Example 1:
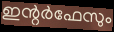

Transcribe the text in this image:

ഇന്റർഫേസും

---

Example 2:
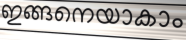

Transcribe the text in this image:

ഇങ്ങനെയാകാം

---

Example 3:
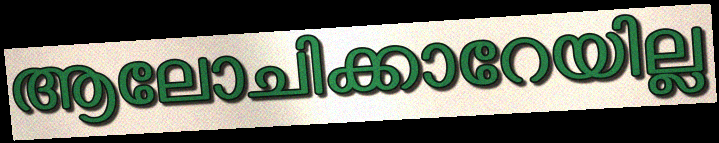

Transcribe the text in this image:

ആലോചിക്കാറേയില്ല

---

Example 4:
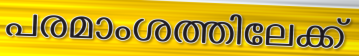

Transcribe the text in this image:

പരമാംശത്തിലേക്ക്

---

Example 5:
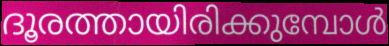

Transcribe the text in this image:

ദൂരത്തായിരിക്കുമ്പോൾ